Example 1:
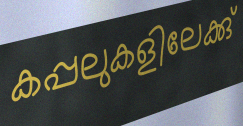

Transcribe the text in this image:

കപ്പലുകളിലേക്കു്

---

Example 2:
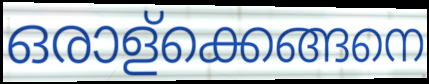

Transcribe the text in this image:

ഒരാള്ക്കെങ്ങനെ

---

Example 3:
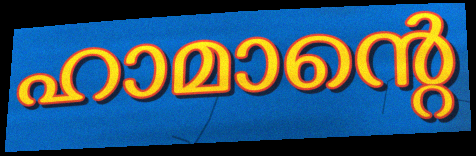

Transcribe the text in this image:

ഹാമാന്റെ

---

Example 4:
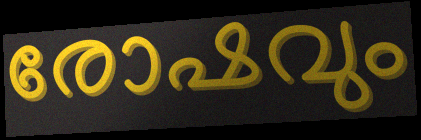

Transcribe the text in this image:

രോഷവും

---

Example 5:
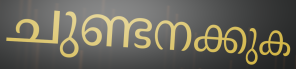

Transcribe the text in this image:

ചുണ്ടനക്കുക